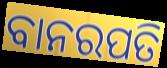
ବାନରପତି